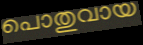
പൊതുവായ